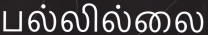
பல்லில்லை